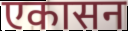
एकासन